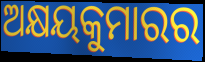
ଅକ୍ଷୟକୁମାରର